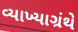
વ્યાખ્યાગ્રંથે